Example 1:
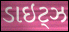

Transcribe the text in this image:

ડાઇટ્ઝ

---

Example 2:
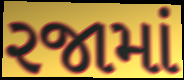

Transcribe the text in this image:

રજામાં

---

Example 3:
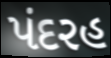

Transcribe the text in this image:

પંદરહ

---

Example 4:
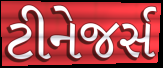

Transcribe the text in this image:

ટીનેજર્સ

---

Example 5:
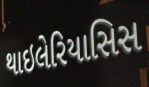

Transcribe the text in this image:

થાઇલેરિયાસિસ